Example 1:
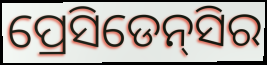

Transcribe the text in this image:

ପ୍ରେସିଡେନ୍‌ସିର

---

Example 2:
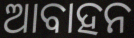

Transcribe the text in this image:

ଆବାହନ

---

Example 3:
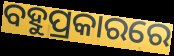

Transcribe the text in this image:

ବହୁପ୍ରକାରରେ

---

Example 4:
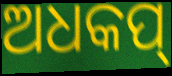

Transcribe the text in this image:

ଅଧକପ୍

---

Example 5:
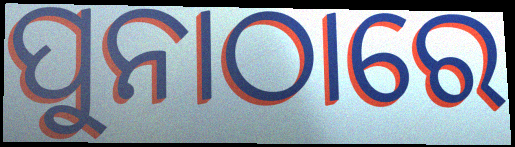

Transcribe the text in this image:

ପୁନାଠାରେ